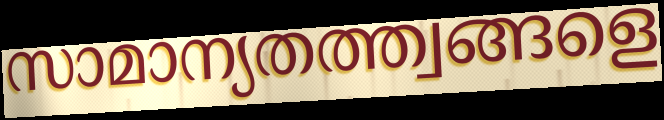
സാമാന്യതത്ത്വങ്ങളെ